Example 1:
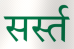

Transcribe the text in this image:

सर्स्त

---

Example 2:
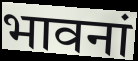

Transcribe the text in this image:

भावनां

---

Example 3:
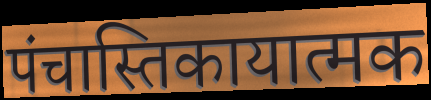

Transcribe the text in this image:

पंचास्तिकायात्मक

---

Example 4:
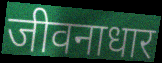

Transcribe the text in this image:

जीवनाधार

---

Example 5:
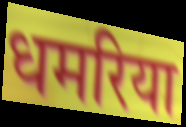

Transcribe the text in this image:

धमरिया